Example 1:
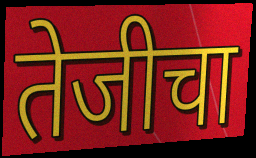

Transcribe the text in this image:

तेजीचा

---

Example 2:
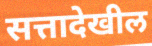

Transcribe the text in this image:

सत्तादेखील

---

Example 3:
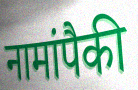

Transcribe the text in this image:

नामांपैकी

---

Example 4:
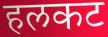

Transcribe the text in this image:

हलकट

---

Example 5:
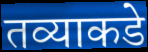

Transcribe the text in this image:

तव्याकडे